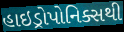
હાઇડ્રોપોનિક્સથી